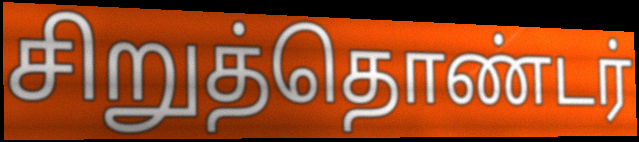
சிறுத்தொண்டர்